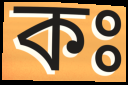
কঃ